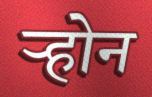
र्‍होन